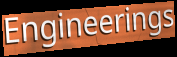
Engineerings